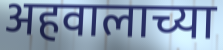
अहवालाच्या